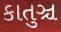
કાતુઞ્ચ